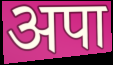
अपा